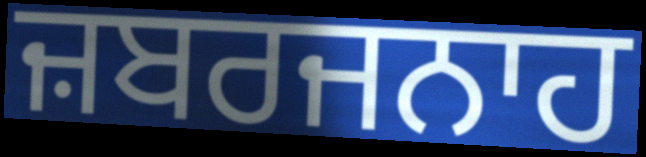
ਜ਼ਬਰਜਨਾਹ